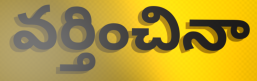
వర్తించినా